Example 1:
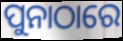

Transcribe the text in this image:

ପୁନାଠାରେ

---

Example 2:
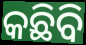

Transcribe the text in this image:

କଛିବି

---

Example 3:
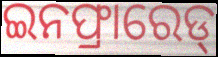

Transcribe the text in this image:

ଇନଫ୍ରାରେଡ୍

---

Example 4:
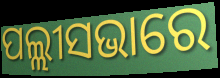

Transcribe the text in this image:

ପଲ୍ଲୀସଭାରେ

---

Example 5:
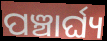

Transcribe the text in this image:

ପଞ୍ଚାର୍ଘ୍ୟ